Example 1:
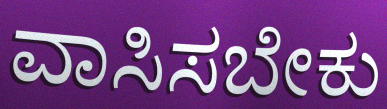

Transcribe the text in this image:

ವಾಸಿಸಬೇಕು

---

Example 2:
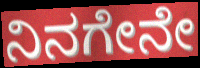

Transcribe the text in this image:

ನಿನಗೇನೇ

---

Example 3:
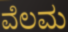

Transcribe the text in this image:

ವೆಲಮ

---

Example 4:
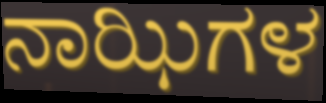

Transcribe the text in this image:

ನಾಝಿಗಳ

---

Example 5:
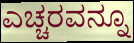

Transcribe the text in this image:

ಎಚ್ಚರವನ್ನೂ